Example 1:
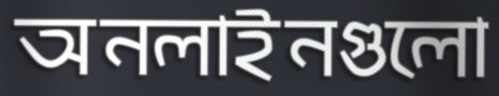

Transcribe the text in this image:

অনলাইনগুলো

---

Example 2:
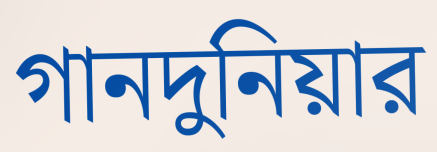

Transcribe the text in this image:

গানদুনিয়ার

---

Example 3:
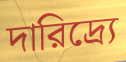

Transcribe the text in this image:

দারিদ্র্যে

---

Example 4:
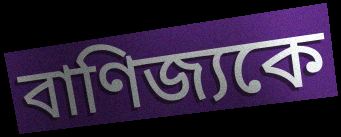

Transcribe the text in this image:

বাণিজ্যকে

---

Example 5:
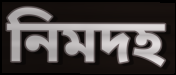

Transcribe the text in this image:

নিমদহ